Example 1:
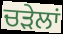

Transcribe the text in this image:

ਚੜੇਲਾਂ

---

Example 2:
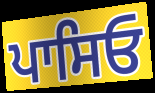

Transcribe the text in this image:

ਪਾਸਿਓ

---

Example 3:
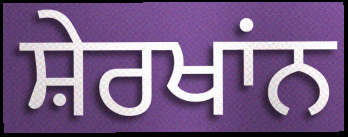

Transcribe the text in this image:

ਸ਼ੇਰਖਾਂਨ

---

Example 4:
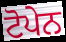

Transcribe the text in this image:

ਟੋਪੇਨ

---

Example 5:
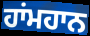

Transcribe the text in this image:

ਹਾਂਮਹਾਨ